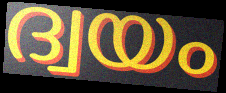
ദ്വയം